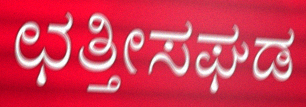
ಛತ್ತೀಸಘಡ